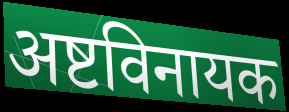
अष्टविनायक